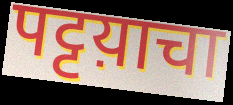
पट्टय़ाचा